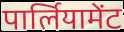
पार्लियामेंट